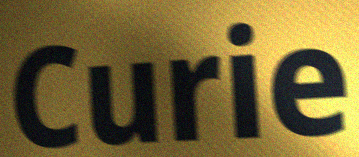
Curie